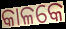
କାଳକେ